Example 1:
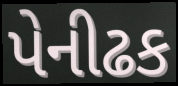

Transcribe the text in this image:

પેનીઢક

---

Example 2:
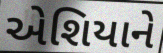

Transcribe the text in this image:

એશિયાને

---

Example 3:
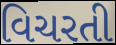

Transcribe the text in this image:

વિચરતી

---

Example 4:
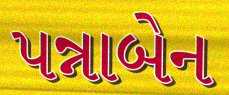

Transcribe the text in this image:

પન્નાબેન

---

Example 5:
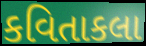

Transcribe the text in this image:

કવિતાકલા